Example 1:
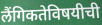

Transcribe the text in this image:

लैंगिकतेविषयीची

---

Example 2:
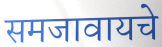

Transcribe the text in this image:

समजावायचे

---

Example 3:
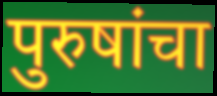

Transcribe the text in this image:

पुरुषांचा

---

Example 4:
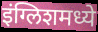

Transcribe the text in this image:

इंग्लिशमध्ये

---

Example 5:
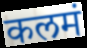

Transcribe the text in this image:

कलमं